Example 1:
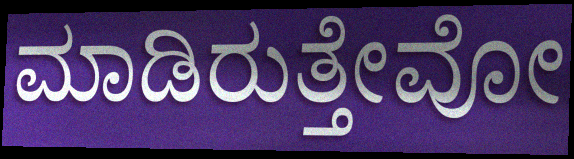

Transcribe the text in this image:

ಮಾಡಿರುತ್ತೇವೋ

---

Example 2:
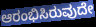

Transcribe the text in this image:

ಆರಂಭಿಸಿರುವುದೇ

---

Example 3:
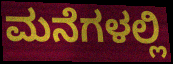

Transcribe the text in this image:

ಮನೆಗಳಲ್ಲಿ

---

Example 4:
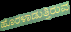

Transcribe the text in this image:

ಹೊರಳಾಡುತ್ತಿರುವ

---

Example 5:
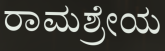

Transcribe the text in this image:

ರಾಮಶ್ರೇಯ